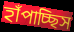
হাঁপাচ্ছিস